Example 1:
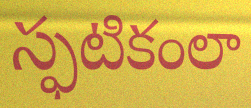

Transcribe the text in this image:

స్ఫటికంలా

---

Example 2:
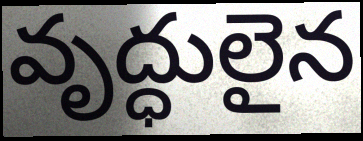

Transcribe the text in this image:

వృద్ధులైన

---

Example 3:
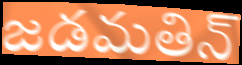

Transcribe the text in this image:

జడమతిన్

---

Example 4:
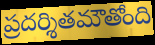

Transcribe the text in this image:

ప్రదర్శితమౌతోంది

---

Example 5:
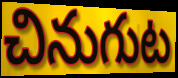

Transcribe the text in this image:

చినుగుట